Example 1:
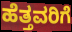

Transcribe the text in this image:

ಹೆತ್ತವರಿಗೆ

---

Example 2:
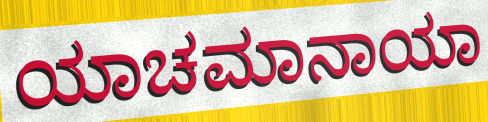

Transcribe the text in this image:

ಯಾಚಮಾನಾಯಾ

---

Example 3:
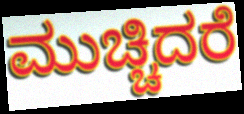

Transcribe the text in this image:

ಮುಚ್ಚಿದರೆ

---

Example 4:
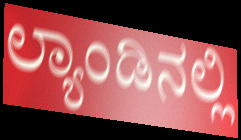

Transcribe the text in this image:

ಲ್ಯಾಂಡಿನಲ್ಲಿ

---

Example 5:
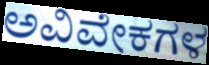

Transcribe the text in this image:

ಅವಿವೇಕಗಳ